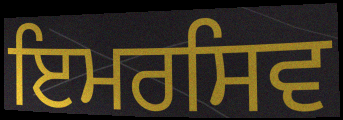
ਇਮਰਸਿਵ